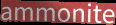
ammonite